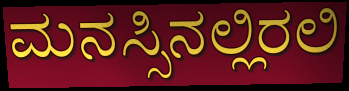
ಮನಸ್ಸಿನಲ್ಲಿರಲಿ